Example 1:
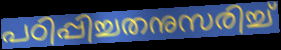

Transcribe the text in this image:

പഠിപ്പിച്ചതനുസരിച്ച്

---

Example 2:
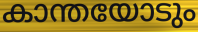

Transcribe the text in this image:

കാന്തയോടും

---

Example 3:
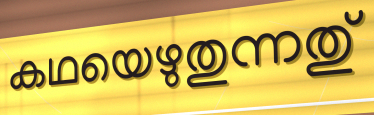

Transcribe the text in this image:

കഥയെഴുതുന്നതു്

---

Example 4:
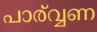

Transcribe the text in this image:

പാര്വ്വണ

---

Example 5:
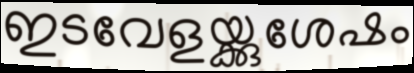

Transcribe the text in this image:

ഇടവേളയ്ക്കുശേഷം